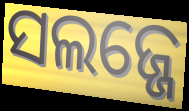
ସଲଜ୍ଜେ